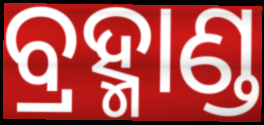
ବ୍ରହ୍ମାଣ୍ଡ